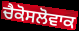
ਚੈਕੋਸਲੋਵਾਕ